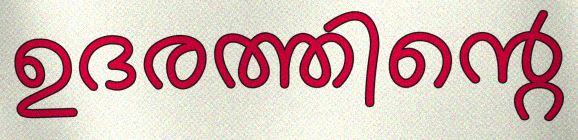
ഉദരത്തിന്റെ